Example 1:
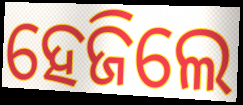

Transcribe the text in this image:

ହେଜିଲେ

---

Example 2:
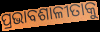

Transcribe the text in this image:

ପ୍ରଭାବଶାଳୀତାକୁ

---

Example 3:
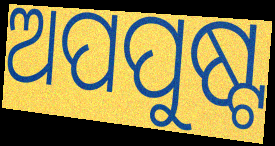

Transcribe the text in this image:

ଅପପୁଷ୍ଟ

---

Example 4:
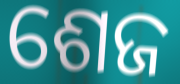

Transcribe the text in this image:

ଶେଜ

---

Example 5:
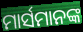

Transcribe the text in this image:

ମାର୍ସମାନଙ୍କ